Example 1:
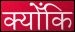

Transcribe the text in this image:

क्योँकि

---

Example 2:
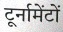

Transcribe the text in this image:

टूर्नामेंटों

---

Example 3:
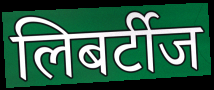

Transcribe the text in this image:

लिबर्टीज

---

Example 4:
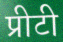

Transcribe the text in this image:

प्रीटी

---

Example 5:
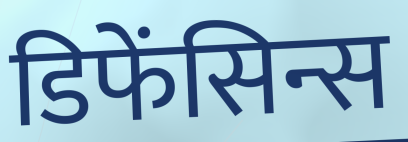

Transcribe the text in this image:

डिफेंसिन्स